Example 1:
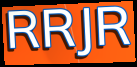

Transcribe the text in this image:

RRJR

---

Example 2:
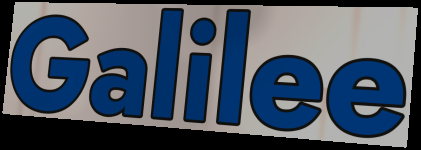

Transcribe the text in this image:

Galilee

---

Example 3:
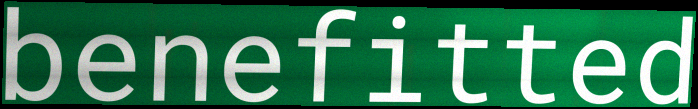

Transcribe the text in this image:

benefitted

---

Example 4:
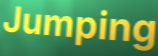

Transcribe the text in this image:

Jumping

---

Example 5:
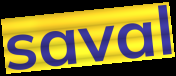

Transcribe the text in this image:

saval